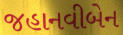
જહાનવીબેન